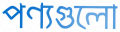
পণ্যগুলো